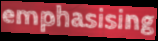
emphasising